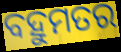
ବହୁମତର